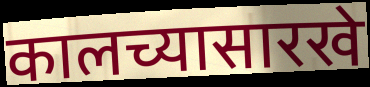
कालच्यासारखे